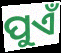
ପୁଏଁ